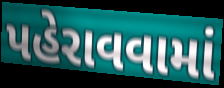
પહેરાવવામાં